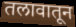
तलावातून